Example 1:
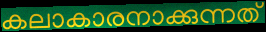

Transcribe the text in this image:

കലാകാരനാക്കുന്നത്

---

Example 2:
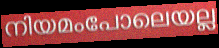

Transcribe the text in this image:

നിയമംപോലെയല്ല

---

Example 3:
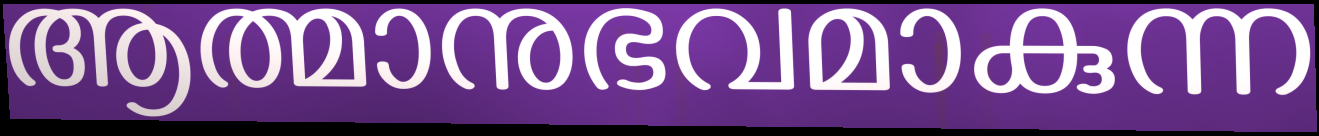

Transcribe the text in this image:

ആത്മാനുഭവമാകുന്ന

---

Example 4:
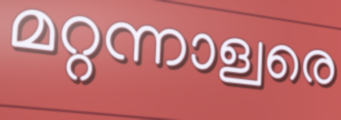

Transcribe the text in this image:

മറ്റന്നാള്വരെ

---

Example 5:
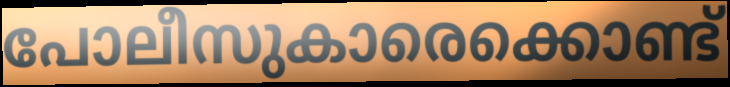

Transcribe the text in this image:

പോലീസുകാരെക്കൊണ്ട്